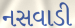
નસવાડી